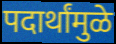
पदार्थांमुळे